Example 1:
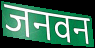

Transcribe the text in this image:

जनवन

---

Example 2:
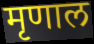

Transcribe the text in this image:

मृणाल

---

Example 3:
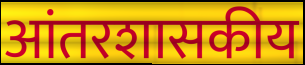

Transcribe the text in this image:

आंतरशासकीय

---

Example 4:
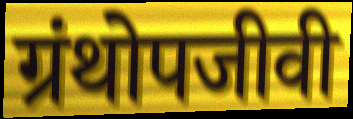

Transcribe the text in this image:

ग्रंथोपजीवी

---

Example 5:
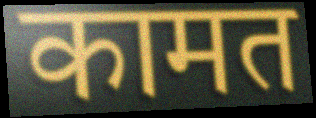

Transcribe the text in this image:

कामत